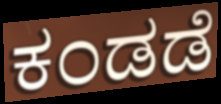
ಕಂಡಡೆ